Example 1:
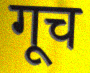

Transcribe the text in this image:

गूच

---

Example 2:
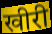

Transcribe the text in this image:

खीरी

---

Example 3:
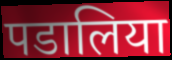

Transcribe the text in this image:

पडालिया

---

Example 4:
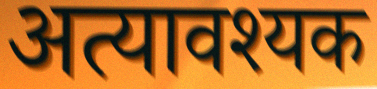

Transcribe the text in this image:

अत्यावश्यक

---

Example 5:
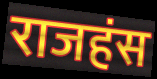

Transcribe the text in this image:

राजहंस